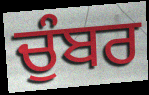
ਚੁੰਬਰ